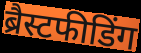
ब्रैस्टफीडिंग